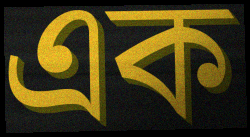
এক